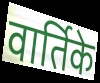
वार्तिके